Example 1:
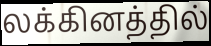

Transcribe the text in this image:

லக்கினத்தில்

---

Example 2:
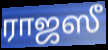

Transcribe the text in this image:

ராஜஸீ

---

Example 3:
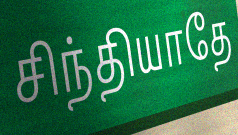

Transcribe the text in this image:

சிந்தியாதே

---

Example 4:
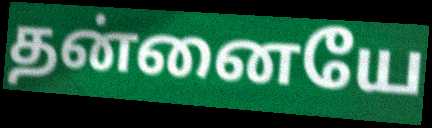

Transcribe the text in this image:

தன்னையே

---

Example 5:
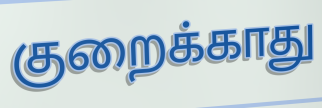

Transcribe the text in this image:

குறைக்காது